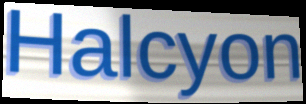
Halcyon